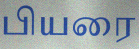
பியரை